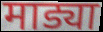
माड्या